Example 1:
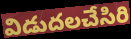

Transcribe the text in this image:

విడుదలచేసిరి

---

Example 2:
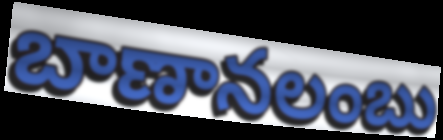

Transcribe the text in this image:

బాణానలంబు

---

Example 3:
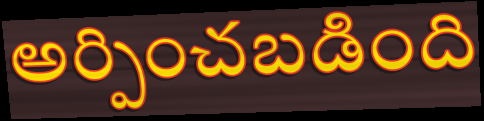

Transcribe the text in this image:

అర్పించబడింది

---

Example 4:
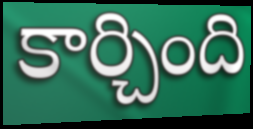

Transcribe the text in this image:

కార్చింది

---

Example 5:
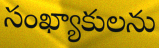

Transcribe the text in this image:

సంఖ్యాకులను